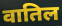
वातिल